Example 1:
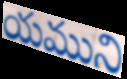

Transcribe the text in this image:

యముని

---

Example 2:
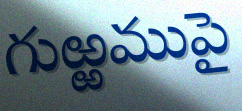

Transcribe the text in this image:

గుఱ్ఱముపై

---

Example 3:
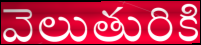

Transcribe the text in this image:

వెలుతురికి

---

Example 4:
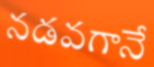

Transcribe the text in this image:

నడవగానే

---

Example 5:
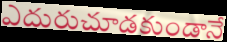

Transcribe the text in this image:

ఎదురుచూడకుండానే